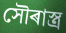
সৌৰাস্ত্ৰ